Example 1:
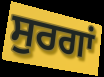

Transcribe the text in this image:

ਸੁਰਗਾਂ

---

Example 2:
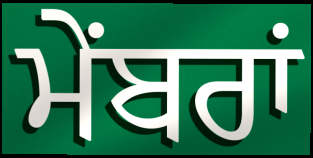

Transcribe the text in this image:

ਮੇਂਬਰਾਂ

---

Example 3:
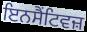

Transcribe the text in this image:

ਇਨਸੈਂਟਿਵਜ਼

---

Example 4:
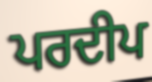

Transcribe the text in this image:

ਪਰਦੀਪ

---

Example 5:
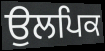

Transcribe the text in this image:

ਉਲਪਿਕ